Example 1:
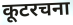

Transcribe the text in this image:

कूटरचना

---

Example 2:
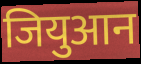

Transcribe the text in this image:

जियुआन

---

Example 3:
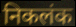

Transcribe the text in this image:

निकलंक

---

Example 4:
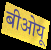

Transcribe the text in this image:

बीओयू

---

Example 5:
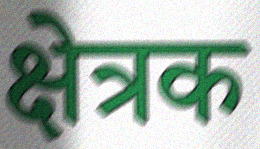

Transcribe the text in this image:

क्षेत्रक